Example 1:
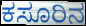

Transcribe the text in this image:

ಕಸೂರಿನ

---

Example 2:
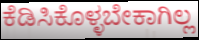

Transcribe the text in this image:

ಕೆಡಿಸಿಕೊಳ್ಳಬೇಕಾಗಿಲ್ಲ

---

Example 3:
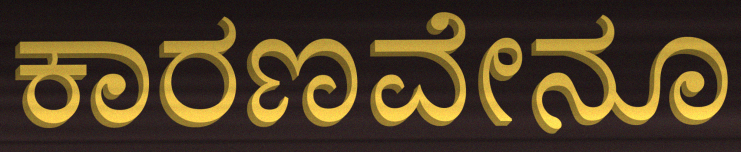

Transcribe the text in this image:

ಕಾರಣವೇನೂ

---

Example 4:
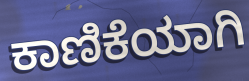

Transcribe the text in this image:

ಕಾಣಿಕೆಯಾಗಿ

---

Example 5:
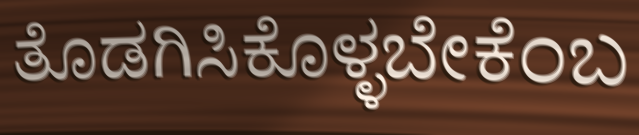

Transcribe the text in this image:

ತೊಡಗಿಸಿಕೊಳ್ಳಬೇಕೆಂಬ